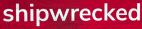
shipwrecked